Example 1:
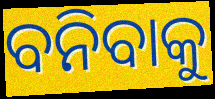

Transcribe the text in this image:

ବନିବାକୁ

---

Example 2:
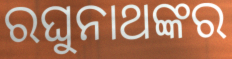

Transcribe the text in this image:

ରଘୁନାଥଙ୍କର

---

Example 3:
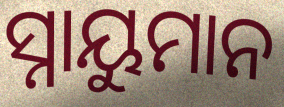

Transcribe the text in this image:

ସ୍ନାୟୁମାନ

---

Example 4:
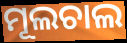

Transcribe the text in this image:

ମୂଲଚାଲ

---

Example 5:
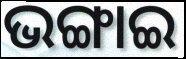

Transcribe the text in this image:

ଭଙ୍ଗାଇ